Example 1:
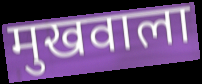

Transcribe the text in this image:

मुखवाला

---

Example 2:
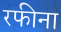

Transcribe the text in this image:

रफीना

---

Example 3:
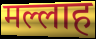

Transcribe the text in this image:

मल्‍लाह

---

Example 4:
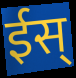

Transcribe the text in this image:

ईस्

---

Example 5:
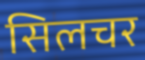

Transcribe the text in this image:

सिलचर